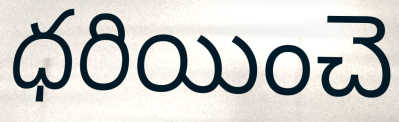
ధరియించె